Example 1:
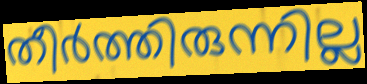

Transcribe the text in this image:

തീർത്തിരുന്നില്ല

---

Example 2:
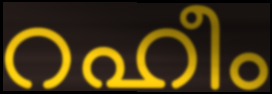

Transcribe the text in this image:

റഹീം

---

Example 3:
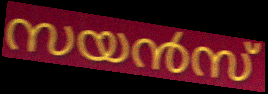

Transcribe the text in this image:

സയൻസ്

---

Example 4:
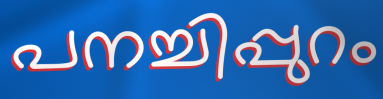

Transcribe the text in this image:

പനച്ചിപ്പുറം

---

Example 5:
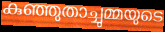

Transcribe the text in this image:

കുഞ്ഞുതാച്ചുമ്മയുടെ